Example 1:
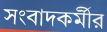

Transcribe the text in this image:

সংবাদকর্মীর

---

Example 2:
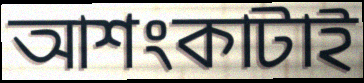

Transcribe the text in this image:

আশংকাটাই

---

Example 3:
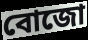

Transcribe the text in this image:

বোজো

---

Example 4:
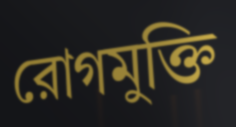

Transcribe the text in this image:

রোগমুক্তি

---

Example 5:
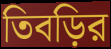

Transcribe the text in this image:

তিবড়ির